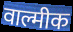
वाल्मीक